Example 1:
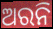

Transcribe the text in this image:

ଅରନି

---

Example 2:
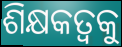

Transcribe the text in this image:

ଶିକ୍ଷକତ୍ଵକୁ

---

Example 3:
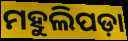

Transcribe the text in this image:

ମହୁଲିପଡ଼ା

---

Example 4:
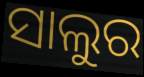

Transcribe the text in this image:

ସାଲୁର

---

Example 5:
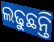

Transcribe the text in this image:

ଲଢୁଛନ୍ତି